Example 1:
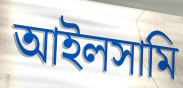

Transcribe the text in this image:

আইলসামি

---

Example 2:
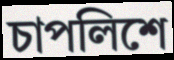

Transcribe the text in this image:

চাপলিশে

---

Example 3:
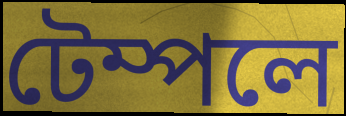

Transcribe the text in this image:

টেম্পলে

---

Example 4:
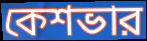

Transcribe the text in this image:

কেশভার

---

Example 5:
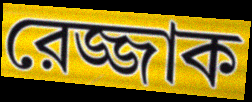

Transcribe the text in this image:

রেজ্জাক